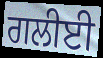
ਗਲੀਈ